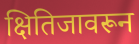
क्षितिजावरून